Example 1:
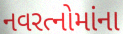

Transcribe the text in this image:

નવરત્નોમાંના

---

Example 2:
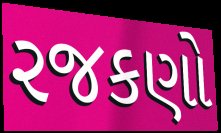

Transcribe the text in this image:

રજકણો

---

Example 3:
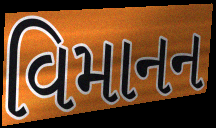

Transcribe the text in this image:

વિમાનન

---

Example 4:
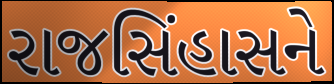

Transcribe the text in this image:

રાજસિંહાસને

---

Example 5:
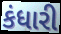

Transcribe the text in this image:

કંધારી